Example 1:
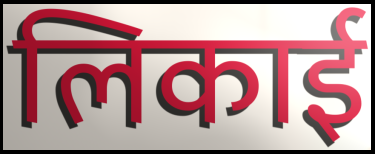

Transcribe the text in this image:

लिकाई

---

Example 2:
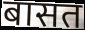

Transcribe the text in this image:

बासत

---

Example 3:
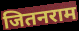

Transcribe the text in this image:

जितनराम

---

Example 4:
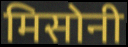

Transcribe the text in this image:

मिसोनी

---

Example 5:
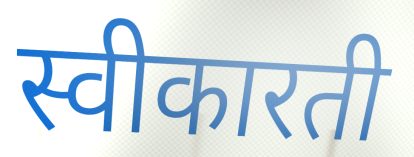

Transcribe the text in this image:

स्वीकारती